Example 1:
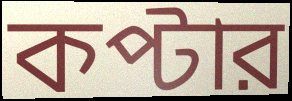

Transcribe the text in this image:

কপ্টার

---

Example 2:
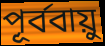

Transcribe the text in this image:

পূর্ববায়ু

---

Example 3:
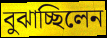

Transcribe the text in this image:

বুঝাচ্ছিলেন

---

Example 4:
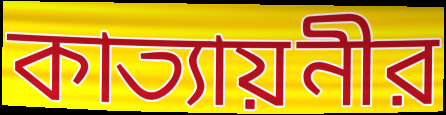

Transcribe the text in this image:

কাত্যায়নীর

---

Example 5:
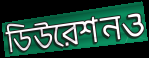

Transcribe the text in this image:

ডিউরেশনও